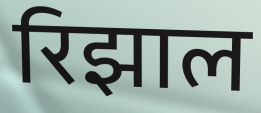
रिझाल